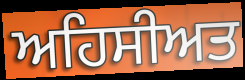
ਅਹਿਸੀਅਤ